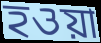
হওয়া